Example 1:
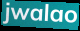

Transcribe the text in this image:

jwalao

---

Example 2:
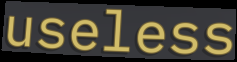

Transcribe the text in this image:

useless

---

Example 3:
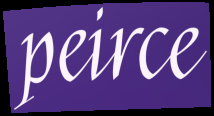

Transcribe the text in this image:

peirce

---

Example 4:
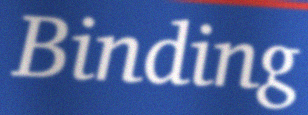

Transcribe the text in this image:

Binding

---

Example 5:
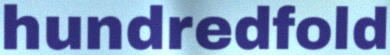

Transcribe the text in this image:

hundredfold